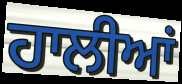
ਹਾਲੀਆਂ